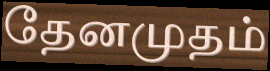
தேனமுதம்